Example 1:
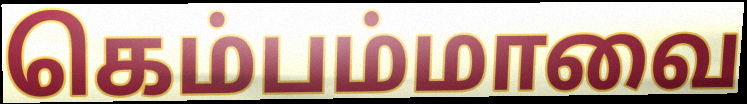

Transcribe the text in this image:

கெம்பம்மாவை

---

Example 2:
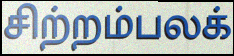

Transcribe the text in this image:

சிற்றம்பலக்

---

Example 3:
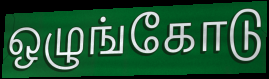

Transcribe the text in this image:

ஒழுங்கோடு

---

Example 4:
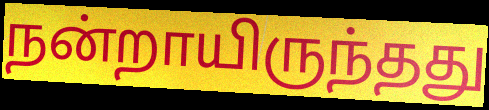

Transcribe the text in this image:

நன்றாயிருந்தது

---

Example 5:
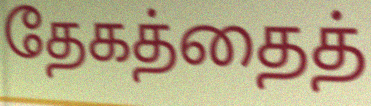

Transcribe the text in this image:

தேகத்தைத்